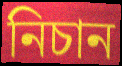
নিচান